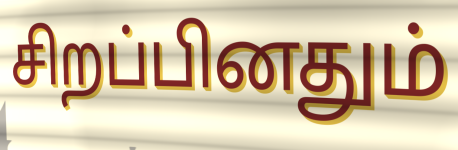
சிறப்பினதும்